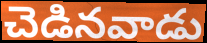
చెడినవాడు